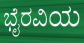
ಭೈರವಿಯ